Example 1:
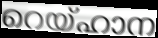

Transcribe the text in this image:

റെയ്ഹാന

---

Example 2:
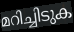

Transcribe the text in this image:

മറിച്ചിടുക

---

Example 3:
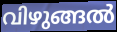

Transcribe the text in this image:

വിഴുങ്ങൽ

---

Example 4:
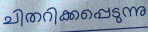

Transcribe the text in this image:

ചിതറിക്കപ്പെടുന്നു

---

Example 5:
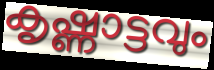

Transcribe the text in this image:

കൃഷ്ണാട്ടവും